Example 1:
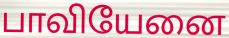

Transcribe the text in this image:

பாவியேனை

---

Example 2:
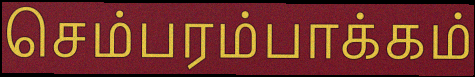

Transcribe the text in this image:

செம்பரம்பாக்கம்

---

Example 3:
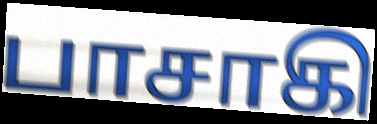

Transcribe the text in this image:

பாசாகி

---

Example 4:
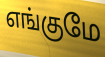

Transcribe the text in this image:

எங்குமே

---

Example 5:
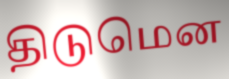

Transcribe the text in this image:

திடுமென